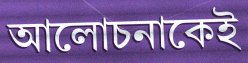
আলোচনাকেই